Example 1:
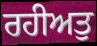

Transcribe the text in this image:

ਰਹੀਅਤੁ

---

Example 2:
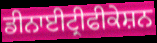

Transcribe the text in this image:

ਡੀਨਾਈਟ੍ਰੀਫੀਕੇਸ਼ਨ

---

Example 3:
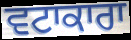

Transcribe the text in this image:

ਵਟਾਕਾਰਾ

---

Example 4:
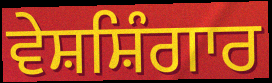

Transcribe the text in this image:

ਵੇਸ਼ਸ਼ਿੰਗਾਰ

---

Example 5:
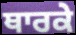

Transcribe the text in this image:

ਥਾਰਕੇ